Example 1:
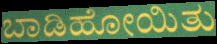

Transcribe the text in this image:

ಬಾಡಿಹೋಯಿತು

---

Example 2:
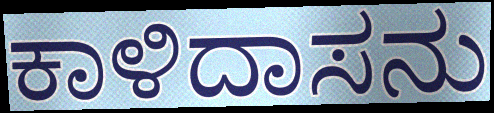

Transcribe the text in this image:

ಕಾಳಿದಾಸನು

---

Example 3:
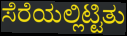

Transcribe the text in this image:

ಸೆರೆಯಲ್ಲಿಟ್ಟಿತು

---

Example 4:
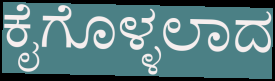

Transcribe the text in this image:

ಕೈಗೊಳ್ಳಲಾದ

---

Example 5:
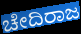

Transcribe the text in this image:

ಚೇದಿರಾಜ